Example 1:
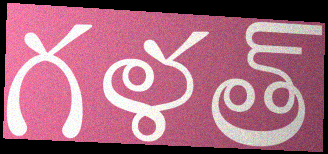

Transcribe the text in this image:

గళత్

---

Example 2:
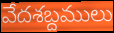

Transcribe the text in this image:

వేదశబ్దములు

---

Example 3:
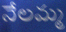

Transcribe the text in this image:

నేలమ్మ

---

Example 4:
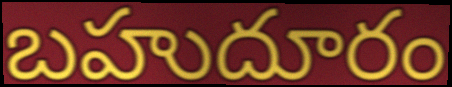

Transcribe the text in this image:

బహుదూరం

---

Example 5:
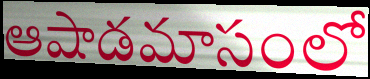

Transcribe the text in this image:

ఆషాడమాసంలో